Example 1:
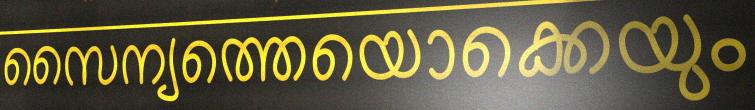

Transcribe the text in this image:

സൈന്യത്തെയൊക്കെയും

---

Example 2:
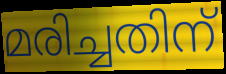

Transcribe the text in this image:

മരിച്ചതിന്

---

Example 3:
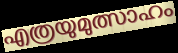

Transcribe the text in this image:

എത്രയുമുത്സാഹം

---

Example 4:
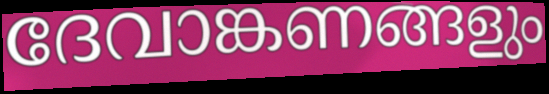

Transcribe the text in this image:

ദേവാങ്കണങ്ങളും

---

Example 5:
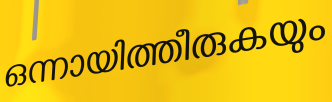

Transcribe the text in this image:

ഒന്നായിത്തീരുകയും